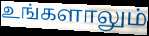
உங்களாலும்